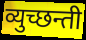
व्युच्छन्ती